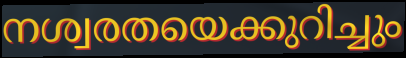
നശ്വരതയെക്കുറിച്ചും